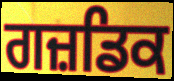
ਗਜ਼ਡਿਕ